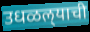
उधळल्याची